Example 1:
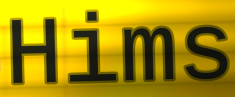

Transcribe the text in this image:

Hims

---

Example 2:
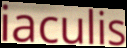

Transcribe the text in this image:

iaculis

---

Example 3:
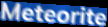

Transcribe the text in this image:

Meteorite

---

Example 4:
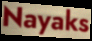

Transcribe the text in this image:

Nayaks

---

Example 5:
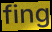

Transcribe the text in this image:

fing